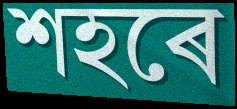
শহৰে